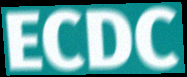
ECDC